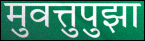
मुवत्तुपुझा